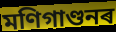
মণিগাণ্ডনৰ